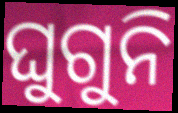
ଘୁଗୁନି